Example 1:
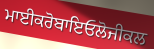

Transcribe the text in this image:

ਮਾਈਕਰੋਬਾਇਓਲੋਜੀਕਲ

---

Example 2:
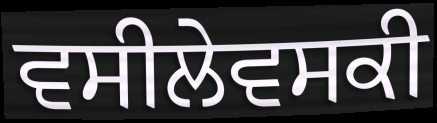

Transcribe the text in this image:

ਵਸੀਲੇਵਸਕੀ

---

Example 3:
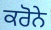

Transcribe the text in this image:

ਕਰੋਨੇ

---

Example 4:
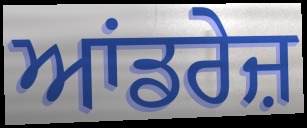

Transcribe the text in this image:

ਆਂਡਰੇਜ਼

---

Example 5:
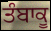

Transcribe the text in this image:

ਤੰਬਾਕੂ